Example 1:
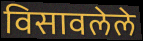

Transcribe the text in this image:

विसावलेले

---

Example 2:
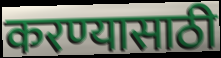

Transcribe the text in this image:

करण्‍यासाठी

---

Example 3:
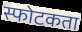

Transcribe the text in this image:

स्फोटकता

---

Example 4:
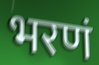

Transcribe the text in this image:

भरणं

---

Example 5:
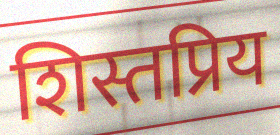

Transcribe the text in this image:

शिस्तप्रिय